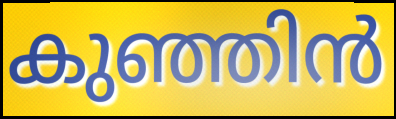
കുഞ്ഞിൻ